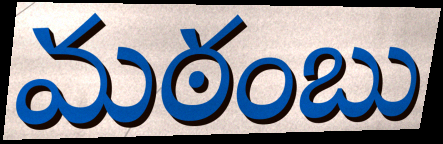
మఠంబు